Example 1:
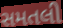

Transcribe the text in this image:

સમતલી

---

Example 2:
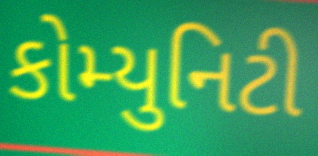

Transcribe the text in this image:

કોમ્યુનિટી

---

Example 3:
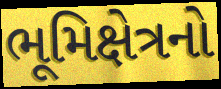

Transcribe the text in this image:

ભૂમિક્ષેત્રનો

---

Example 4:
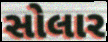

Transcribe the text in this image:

સોલાર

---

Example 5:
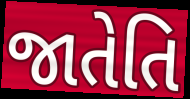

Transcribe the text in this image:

જાતેતિ